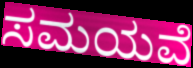
ಸಮಯವೆ